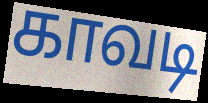
காவடி